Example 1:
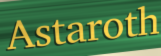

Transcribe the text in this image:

Astaroth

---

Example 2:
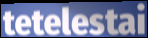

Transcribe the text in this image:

tetelestai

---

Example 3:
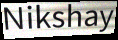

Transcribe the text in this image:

Nikshay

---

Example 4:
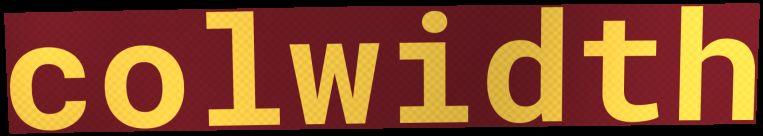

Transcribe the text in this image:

colwidth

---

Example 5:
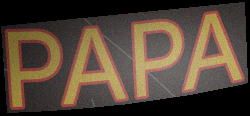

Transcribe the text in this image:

PAPA